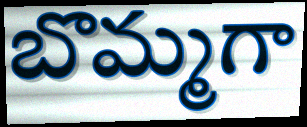
బొమ్మగా